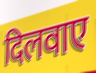
दिलवाए